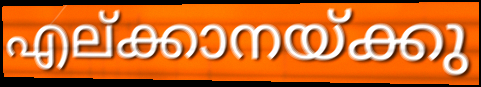
എല്ക്കാനയ്ക്കു